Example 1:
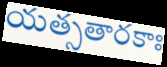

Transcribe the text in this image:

యత్సతారకాః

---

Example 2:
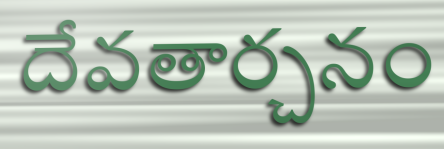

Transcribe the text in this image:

దేవతార్చనం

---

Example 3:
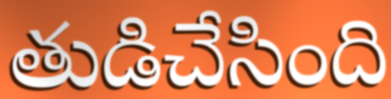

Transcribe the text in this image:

తుడిచేసింది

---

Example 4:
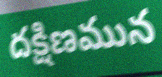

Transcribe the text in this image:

దక్షిణమున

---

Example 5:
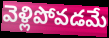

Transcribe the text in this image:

వెళ్లిపోవడమే